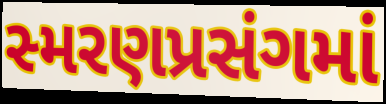
સ્મરણપ્રસંગમાં